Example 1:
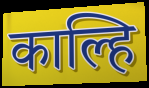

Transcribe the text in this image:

काल्हि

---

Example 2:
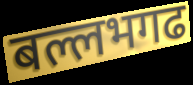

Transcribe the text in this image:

बल्लभगढ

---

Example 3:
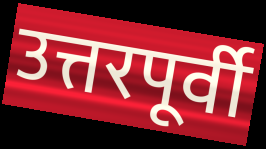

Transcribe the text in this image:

उत्तरपूर्वी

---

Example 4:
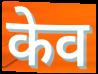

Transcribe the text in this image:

केव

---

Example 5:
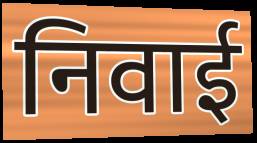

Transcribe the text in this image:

निवाई